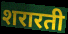
शरारती